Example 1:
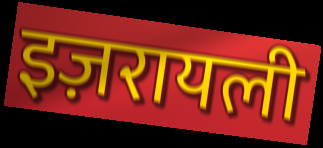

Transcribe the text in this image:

इज़रायली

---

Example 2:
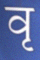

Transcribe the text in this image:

वृ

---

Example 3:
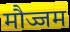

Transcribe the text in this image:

मौज्जम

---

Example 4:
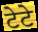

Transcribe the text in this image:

टेटे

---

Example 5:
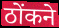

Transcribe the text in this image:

ठोंकने